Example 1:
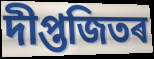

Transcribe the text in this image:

দীপ্তজিতৰ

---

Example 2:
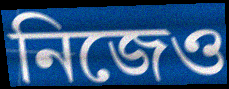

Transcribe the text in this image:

নিজেও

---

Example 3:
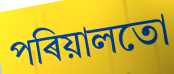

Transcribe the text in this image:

পৰিয়ালতো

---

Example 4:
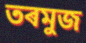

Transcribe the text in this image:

তৰমুজ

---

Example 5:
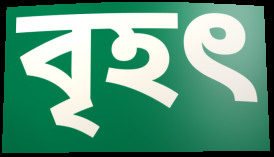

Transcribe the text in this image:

বৃহৎ